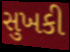
સુખકી